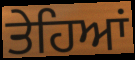
ਤੇਹਿਆਂ